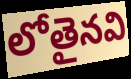
లోతైనవి